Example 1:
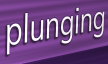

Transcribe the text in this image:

plunging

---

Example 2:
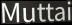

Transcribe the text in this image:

Muttai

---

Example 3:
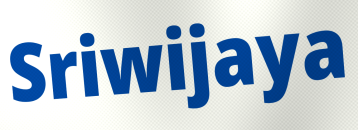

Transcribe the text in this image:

Sriwijaya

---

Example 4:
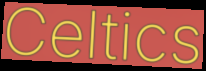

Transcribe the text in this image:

Celtics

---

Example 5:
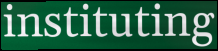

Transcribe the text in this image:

instituting